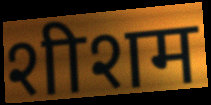
शीशम